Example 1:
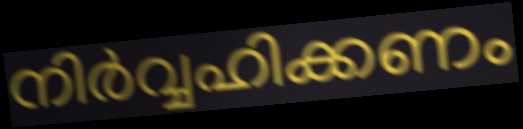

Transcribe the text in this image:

നിർവ്വഹിക്കണം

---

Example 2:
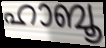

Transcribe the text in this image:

ഹാബൂ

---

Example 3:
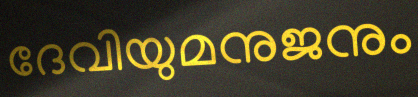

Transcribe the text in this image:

ദേവിയുമനുജനും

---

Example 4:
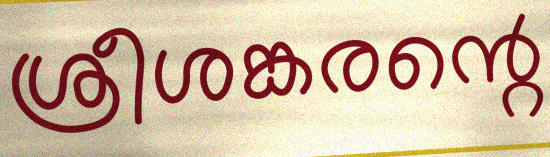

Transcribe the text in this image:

ശ്രീശങ്കരന്റെ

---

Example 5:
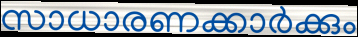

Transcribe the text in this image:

സാധാരണക്കാർക്കും